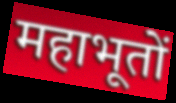
महाभूतों